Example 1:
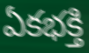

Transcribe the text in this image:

ఏకభక్తి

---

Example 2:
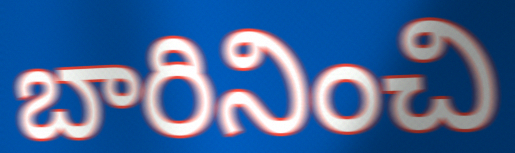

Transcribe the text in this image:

బారినించి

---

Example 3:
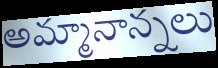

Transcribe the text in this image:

అమ్మానాన్నలు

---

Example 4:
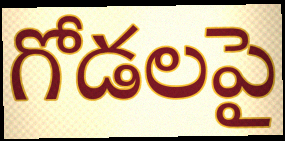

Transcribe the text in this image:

గోడలపై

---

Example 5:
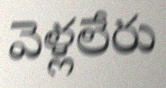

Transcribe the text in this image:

వెళ్లలేరు